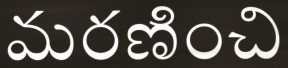
మరణించి